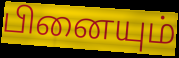
பினையும்